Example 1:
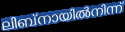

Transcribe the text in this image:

ലിബ്നായിൽനിന്ന്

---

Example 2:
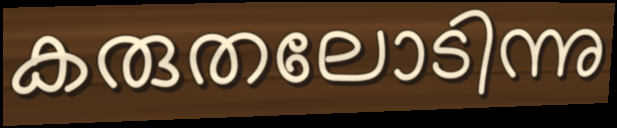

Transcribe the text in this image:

കരുതലോടിന്നു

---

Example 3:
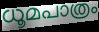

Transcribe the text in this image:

ധൂമപാത്രം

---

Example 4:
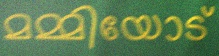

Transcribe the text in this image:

മമ്മിയോട്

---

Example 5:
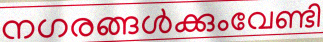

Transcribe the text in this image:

നഗരങ്ങൾക്കുംവേണ്ടി